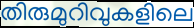
തിരുമുറിവുകളിലെ